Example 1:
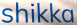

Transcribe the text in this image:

shikka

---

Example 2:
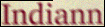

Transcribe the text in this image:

Indiann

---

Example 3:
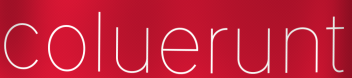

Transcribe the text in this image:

coluerunt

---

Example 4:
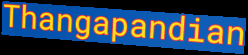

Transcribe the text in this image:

Thangapandian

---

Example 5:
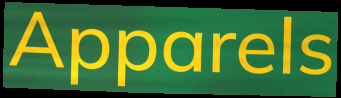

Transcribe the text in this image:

Apparels